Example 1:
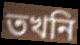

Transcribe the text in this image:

তখনি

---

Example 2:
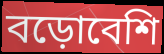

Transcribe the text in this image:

বড়োবেশি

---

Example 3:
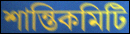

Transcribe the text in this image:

শান্তিকমিটি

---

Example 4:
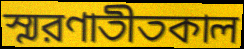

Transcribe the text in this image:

স্মরণাতীতকাল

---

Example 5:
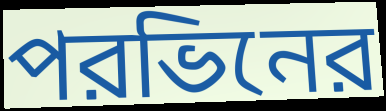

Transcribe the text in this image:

পরভিনের